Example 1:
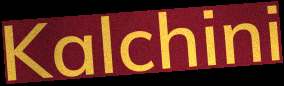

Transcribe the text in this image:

Kalchini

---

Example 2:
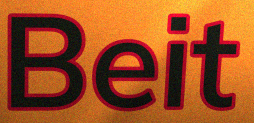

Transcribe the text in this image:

Beit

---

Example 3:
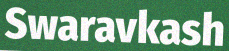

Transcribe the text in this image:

Swaravkash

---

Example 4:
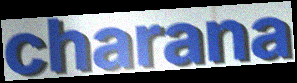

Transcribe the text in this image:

charana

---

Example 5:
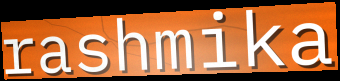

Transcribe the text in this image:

rashmika